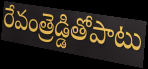
రేవంత్రెడ్డితోపాటు